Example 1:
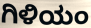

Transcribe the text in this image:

ಗಿಳಿಯಂ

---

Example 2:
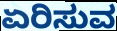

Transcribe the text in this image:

ಏರಿಸುವ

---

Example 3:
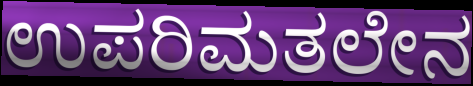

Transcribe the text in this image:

ಉಪರಿಮತಲೇನ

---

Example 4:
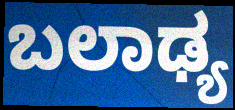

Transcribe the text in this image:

ಬಲಾಢ್ಯ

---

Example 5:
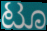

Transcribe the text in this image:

ಟೂ